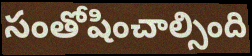
సంతోషించాల్సింది